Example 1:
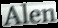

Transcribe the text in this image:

Alen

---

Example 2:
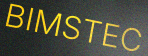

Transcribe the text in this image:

BIMSTEC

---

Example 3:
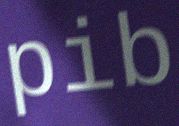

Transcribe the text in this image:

pib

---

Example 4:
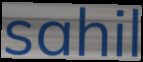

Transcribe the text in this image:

sahil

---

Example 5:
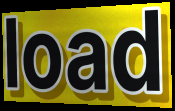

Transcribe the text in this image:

load